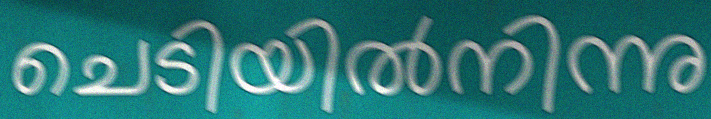
ചെടിയിൽനിന്നു